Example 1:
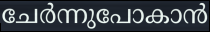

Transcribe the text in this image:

ചേർന്നുപോകാൻ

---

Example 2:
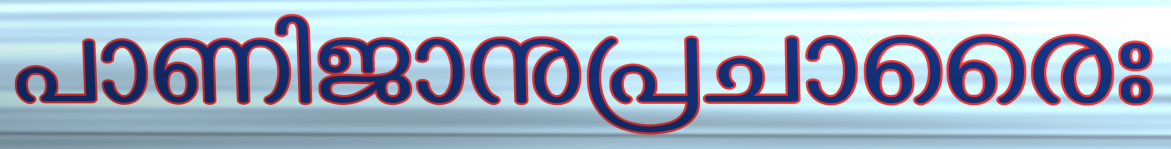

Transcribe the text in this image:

പാണിജാനുപ്രചാരൈഃ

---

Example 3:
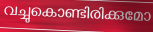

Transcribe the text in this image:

വച്ചുകൊണ്ടിരിക്കുമോ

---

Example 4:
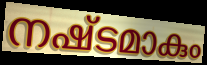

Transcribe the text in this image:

നഷ്‌ടമാകും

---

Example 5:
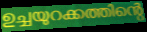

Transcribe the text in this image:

ഉച്ചയുറക്കത്തിന്റെ